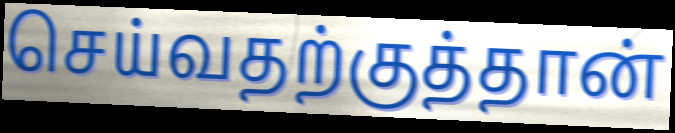
செய்வதற்குத்தான்